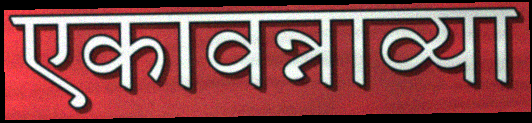
एकावन्नाव्या